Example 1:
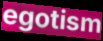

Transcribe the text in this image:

egotism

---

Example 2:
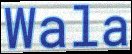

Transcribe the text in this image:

Wala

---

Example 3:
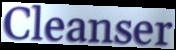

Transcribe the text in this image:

Cleanser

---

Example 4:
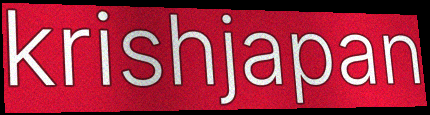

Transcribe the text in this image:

krishjapan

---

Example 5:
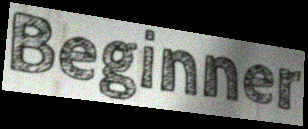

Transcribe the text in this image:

Beginner